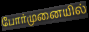
போர்முனையில்